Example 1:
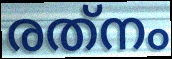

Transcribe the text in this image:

രത്‌നം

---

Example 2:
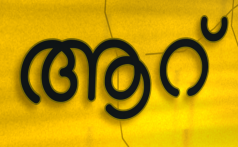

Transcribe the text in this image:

ആറ്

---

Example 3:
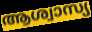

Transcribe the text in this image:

ആശ്വാസ്യ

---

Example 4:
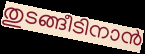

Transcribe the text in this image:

തുടങ്ങീടിനാൻ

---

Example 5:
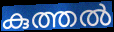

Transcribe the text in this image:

കുത്തൽ